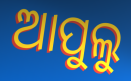
ଆପୁଲୁ